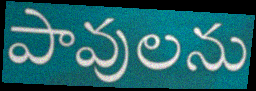
పావులను